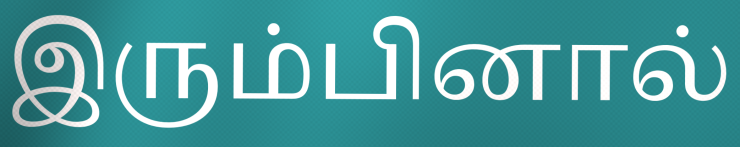
இரும்பினால்